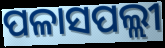
ପଳାସପଲ୍ଲୀ